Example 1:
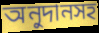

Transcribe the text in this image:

অনুদানসহ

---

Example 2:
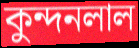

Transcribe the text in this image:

কুন্দনলাল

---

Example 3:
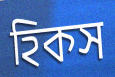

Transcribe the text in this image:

হিকস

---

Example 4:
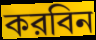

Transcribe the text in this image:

করবিন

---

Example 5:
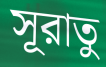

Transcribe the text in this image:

সূরাতু